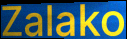
Zalako